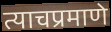
त्याचप्रमाणे